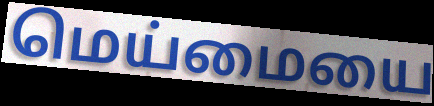
மெய்மையை